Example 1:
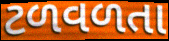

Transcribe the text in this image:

ટળવળતા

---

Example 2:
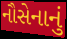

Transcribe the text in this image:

નૌસેનાનું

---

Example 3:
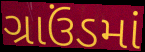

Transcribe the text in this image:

ગ્રાઉંડમાં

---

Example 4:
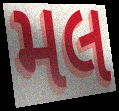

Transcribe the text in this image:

મલ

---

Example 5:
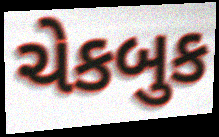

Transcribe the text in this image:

ચેકબુક